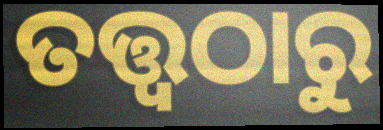
ତତ୍ତ୍ବଠାରୁ